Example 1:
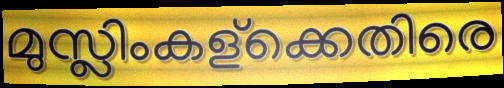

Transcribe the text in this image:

മുസ്ലിംകള്ക്കെതിരെ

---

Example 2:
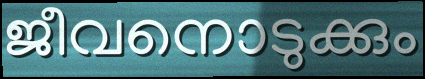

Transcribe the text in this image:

ജീവനൊടുക്കും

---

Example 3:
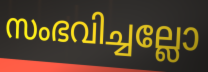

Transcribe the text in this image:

സംഭവിച്ചല്ലോ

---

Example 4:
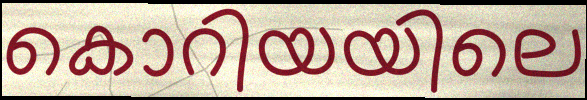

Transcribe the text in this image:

കൊറിയയിലെ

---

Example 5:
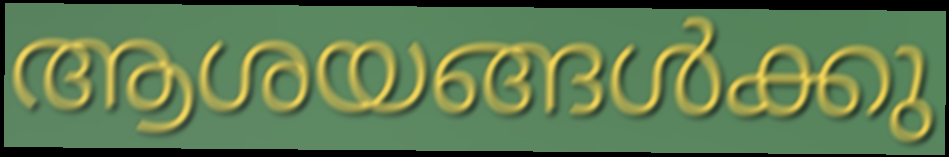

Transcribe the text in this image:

ആശയങ്ങൾക്കു